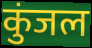
कुंजल